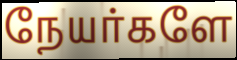
நேயர்களே